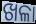
ଖଳା